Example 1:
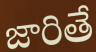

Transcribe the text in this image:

జారితే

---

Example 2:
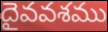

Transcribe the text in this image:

దైవవశము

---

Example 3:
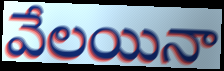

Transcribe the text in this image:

వేలయినా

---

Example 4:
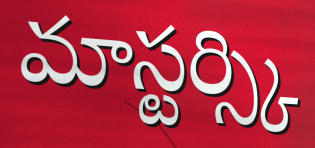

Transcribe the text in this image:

మాస్టర్స్కి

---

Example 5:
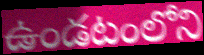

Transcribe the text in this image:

ఉండటంలోని